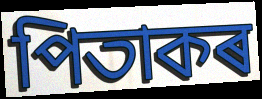
পিতাকৰ